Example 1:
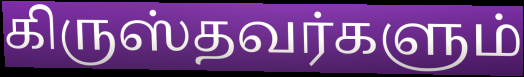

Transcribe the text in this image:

கிருஸ்தவர்களும்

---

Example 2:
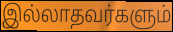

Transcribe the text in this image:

இல்லாதவர்களும்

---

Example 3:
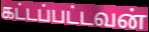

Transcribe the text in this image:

கட்டப்பட்டவன்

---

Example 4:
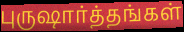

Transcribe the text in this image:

புருஷார்த்தங்கள்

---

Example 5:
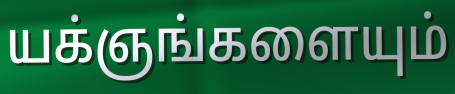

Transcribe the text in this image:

யக்ஞங்களையும்